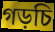
গড়চি